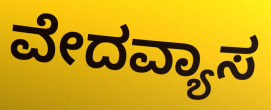
ವೇದವ್ಯಾಸ